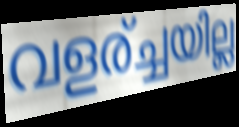
വളര്ച്ചയില്ല